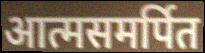
आत्मसमर्पित